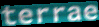
terrae